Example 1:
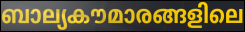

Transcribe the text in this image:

ബാല്യകൗമാരങ്ങളിലെ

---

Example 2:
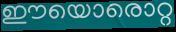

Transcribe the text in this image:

ഈയൊരൊറ്റ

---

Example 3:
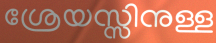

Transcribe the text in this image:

ശ്രേയസ്സിനുള്ള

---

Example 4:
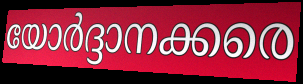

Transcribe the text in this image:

യോർദ്ദാനക്കരെ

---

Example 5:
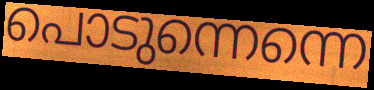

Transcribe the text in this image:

പൊടുന്നെന്നെ